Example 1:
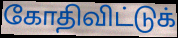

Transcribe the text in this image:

கோதிவிட்டுக்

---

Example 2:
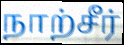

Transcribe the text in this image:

நாற்சீர்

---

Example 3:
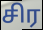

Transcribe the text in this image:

சிர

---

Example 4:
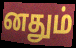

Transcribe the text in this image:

னதும்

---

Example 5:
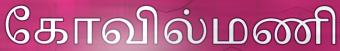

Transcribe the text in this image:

கோவில்மணி